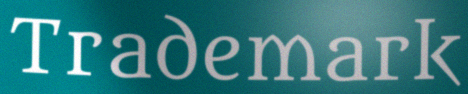
Trademark